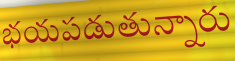
భయపడుతున్నారు